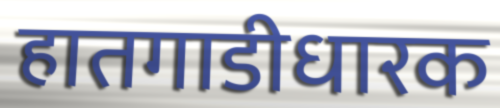
हातगाडीधारक